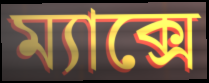
ম্যাক্সে